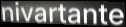
nivartante